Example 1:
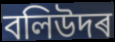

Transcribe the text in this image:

বলিউদৰ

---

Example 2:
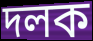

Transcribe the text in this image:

দলক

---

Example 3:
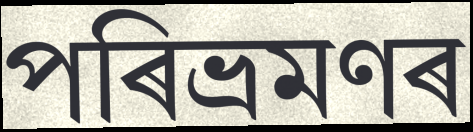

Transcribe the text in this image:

পৰিভ্ৰমণৰ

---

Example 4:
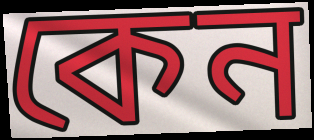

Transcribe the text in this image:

কেন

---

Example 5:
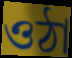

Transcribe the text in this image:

ওঠা